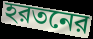
হরতনের